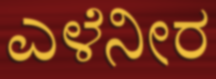
ಎಳೆನೀರ